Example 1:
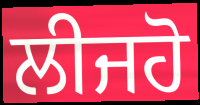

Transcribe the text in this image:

ਲੀਜਹੋ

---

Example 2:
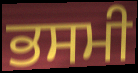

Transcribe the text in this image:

ਭਸਮੀ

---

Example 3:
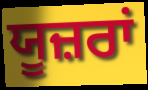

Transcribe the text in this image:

ਯੂਜ਼ਰਾਂ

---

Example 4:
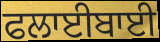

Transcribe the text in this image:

ਫਲਾਈਬਾਈ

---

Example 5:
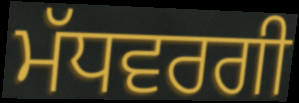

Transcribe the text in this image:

ਮੱਧਵਰਗੀ